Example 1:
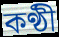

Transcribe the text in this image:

কণ্ঠী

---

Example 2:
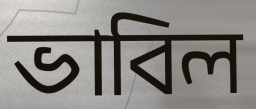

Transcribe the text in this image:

ভাবিল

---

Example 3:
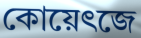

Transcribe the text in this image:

কোয়েৎজে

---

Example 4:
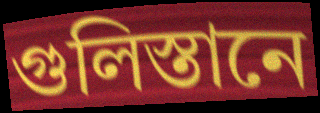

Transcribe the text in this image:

গুলিস্তানে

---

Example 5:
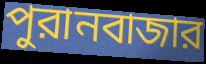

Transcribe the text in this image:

পুরানবাজার